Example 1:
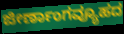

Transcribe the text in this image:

ಜೀರ್ಣಾಂಗವ್ಯೂಹದ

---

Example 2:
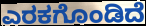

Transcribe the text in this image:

ಎರಕಗೊಂಡಿದೆ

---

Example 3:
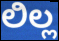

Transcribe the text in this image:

ಲಿಲ್ಲ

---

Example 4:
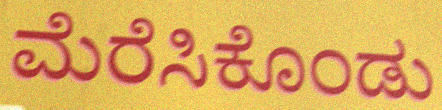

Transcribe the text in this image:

ಮೆರೆಸಿಕೊಂಡು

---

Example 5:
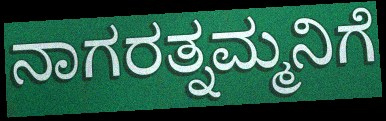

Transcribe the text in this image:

ನಾಗರತ್ನಮ್ಮನಿಗೆ